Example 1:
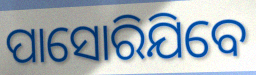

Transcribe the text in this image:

ପାସୋରିଯିବେ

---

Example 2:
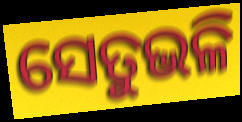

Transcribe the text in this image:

ସେତୁଭଳି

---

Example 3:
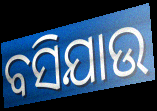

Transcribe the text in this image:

ବସିଯାଉ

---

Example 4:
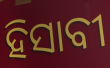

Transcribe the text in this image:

ହିସାବୀ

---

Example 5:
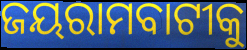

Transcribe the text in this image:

ଜୟରାମବାଟୀକୁ